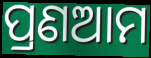
ପ୍ରଣଆମ